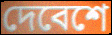
দেবেশে